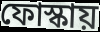
ফোস্কায়